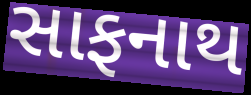
સાફનાથ